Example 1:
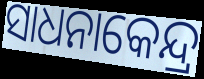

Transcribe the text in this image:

ସାଧନାକେନ୍ଦ୍ର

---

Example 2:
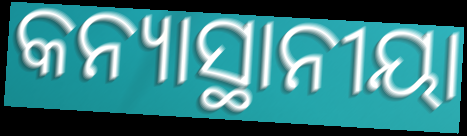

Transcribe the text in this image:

କନ୍ୟାସ୍ଥାନୀୟା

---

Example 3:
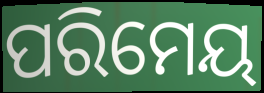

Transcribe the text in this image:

ପରିମେୟ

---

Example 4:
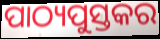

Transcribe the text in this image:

ପାଠ୍ୟପୁସ୍ତକର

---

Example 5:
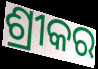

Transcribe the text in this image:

ଶ୍ରୀକର